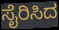
ಸೈರಿಸಿದ